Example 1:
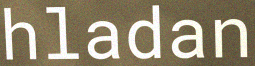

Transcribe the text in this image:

hladan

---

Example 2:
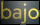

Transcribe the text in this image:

bajo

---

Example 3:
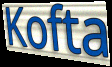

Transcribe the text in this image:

Kofta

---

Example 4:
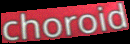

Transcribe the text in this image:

choroid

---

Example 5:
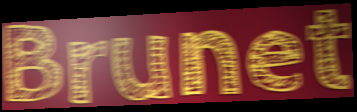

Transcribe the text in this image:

Brunet